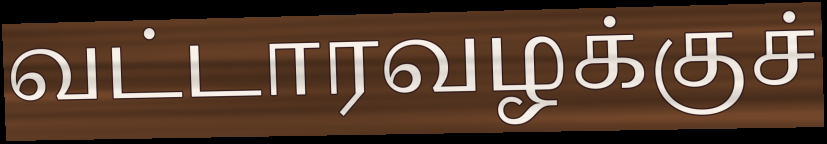
வட்டாரவழக்குச்